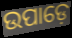
ଉପାଡ଼େ